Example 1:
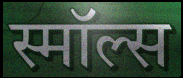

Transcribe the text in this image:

स्मॉल्स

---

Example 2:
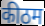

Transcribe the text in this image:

कीठम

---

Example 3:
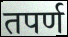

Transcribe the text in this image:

तपर्ण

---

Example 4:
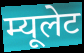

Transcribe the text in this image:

म्यूलेट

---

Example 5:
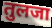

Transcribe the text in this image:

तुलजा